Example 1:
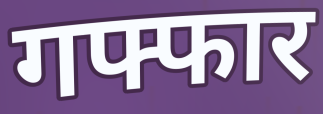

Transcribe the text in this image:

गफ्फार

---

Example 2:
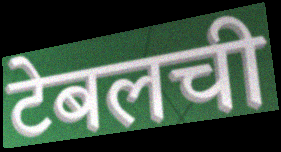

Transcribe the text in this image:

टेबलची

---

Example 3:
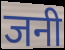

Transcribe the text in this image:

जनी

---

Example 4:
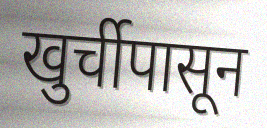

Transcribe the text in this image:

खुर्चीपासून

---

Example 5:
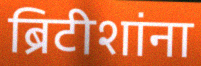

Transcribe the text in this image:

ब्रिटीशांना